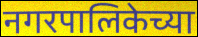
नगरपालिकेच्या